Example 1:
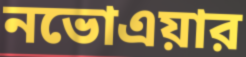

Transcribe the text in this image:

নভোএয়ার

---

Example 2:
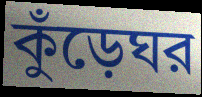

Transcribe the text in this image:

কুঁড়েঘর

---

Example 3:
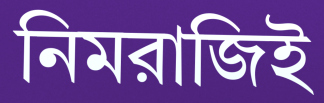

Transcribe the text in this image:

নিমরাজিই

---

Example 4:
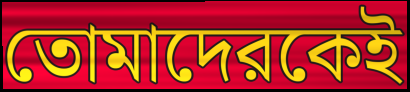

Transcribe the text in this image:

তোমাদেরকেই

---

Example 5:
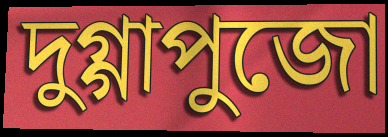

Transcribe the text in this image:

দুগ্গাপুজো